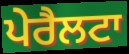
ਪੇਰੈਲਟਾ